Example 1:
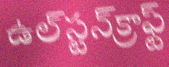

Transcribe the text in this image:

ఉల్‌స్టన్‌క్రాఫ్ట్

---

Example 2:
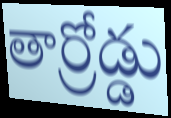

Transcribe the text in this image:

తార్రోడ్డు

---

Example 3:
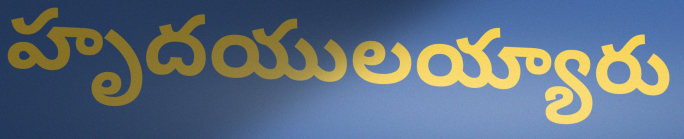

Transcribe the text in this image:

హృదయులయ్యారు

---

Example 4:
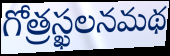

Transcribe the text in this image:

గోత్రస్ఖలనమథ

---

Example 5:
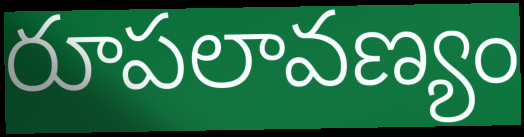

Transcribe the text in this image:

రూపలావణ్యం